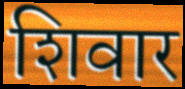
शिवार